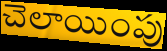
చెలాయింపు